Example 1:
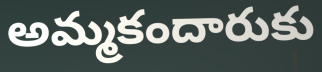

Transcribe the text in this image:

అమ్మకందారుకు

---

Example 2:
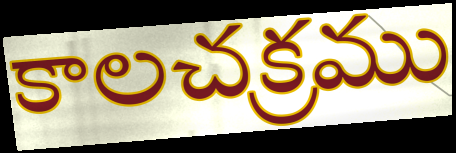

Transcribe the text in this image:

కాలచక్రము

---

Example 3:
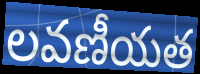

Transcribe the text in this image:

లవణీయత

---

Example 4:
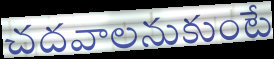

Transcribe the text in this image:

చదవాలనుకుంటే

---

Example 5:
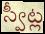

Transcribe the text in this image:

స్వీట్ల